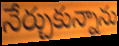
నేర్చుకున్నాను